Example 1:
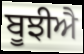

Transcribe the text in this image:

ਬੂਝੀਐ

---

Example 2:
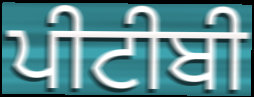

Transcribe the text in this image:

ਪੀਟੀਬੀ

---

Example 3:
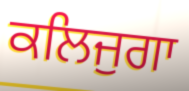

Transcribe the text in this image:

ਕਲਿਜੁਗਾ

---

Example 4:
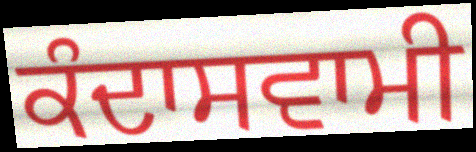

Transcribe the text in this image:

ਕੰਦਾਸਵਾਮੀ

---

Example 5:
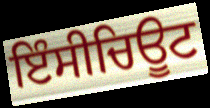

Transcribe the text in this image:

ਇੰਸੀਚਿਊਟ